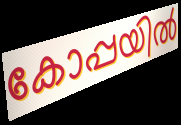
കോപ്പയിൽ